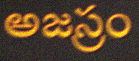
అజస్రం